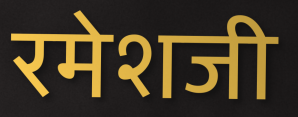
रमेशजी